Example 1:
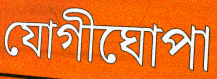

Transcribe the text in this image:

যোগীঘোপা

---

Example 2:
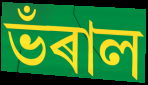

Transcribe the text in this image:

ভঁৰাল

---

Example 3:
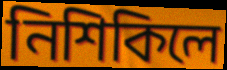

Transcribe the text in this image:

নিশিকিলে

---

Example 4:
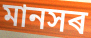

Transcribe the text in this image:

মানসৰ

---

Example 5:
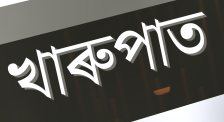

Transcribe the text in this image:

খাৰুপাত